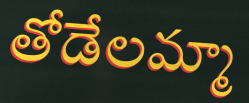
తోడేలమ్మా